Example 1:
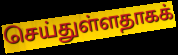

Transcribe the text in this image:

செய்துள்ளதாகக்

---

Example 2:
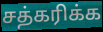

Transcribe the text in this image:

சத்கரிக்க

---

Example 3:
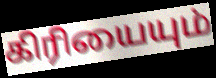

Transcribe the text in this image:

கிரியையும்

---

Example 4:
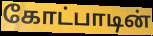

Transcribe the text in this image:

கோட்பாடின்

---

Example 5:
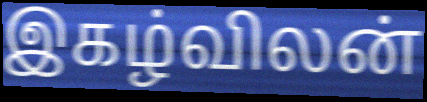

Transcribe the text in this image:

இகழ்விலன்